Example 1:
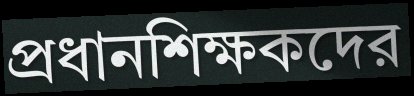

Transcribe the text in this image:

প্রধানশিক্ষকদের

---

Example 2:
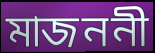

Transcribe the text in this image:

মাজননী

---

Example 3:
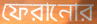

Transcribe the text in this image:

ফেরানোর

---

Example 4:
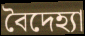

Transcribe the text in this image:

বৈদেহ্যা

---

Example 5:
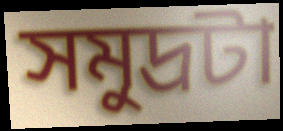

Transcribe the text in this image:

সমুদ্রটা